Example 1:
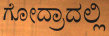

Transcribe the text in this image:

ಗೋದ್ರಾದಲ್ಲಿ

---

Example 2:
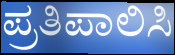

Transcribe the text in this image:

ಪ್ರತಿಪಾಲಿಸಿ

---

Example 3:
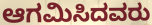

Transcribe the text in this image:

ಆಗಮಿಸಿದವರು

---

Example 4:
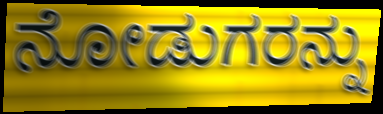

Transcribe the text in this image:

ನೋಡುಗರನ್ನು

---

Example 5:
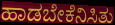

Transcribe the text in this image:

ಹಾಡಬೇಕೆನಿಸಿತು